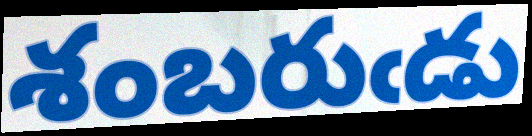
శంబరుఁడు